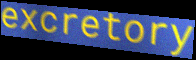
excretory